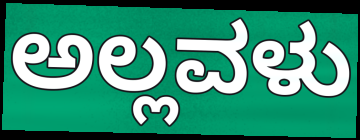
ಅಲ್ಲವಳು